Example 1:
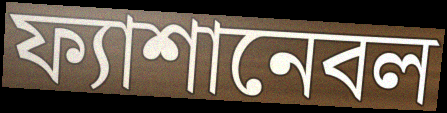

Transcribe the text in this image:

ফ্যাশানেবল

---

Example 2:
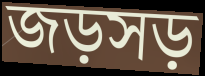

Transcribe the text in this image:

জড়সড়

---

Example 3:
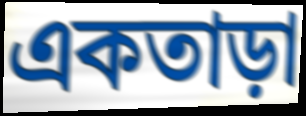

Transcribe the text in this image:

একতাড়া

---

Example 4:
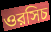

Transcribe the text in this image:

ওরসিচ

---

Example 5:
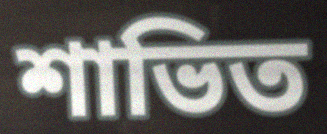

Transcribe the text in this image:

শাভিত